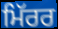
ਮਿੱਰਰ